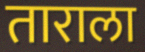
ताराला